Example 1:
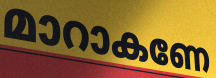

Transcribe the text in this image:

മാറാകണേ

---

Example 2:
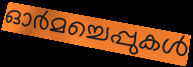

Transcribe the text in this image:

ഓർമച്ചെപ്പുകൾ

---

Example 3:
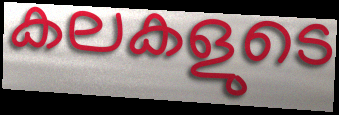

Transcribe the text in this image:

കലകളുടെ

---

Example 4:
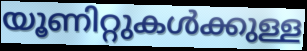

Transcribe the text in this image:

യൂണിറ്റുകൾക്കുള്ള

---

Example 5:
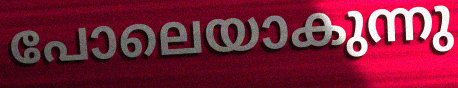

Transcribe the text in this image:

പോലെയാകുന്നു